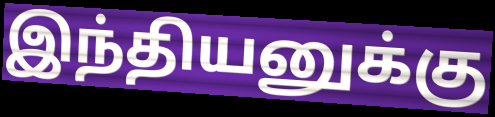
இந்தியனுக்கு